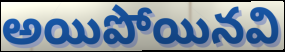
అయిపోయినవి